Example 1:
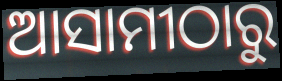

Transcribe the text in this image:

ଆସାମୀଠାରୁ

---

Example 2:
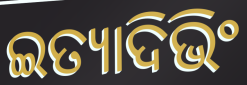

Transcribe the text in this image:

ଇତ୍ୟାଦିଭିଂ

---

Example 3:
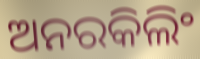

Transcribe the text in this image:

ଅନରକିଲିଂ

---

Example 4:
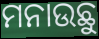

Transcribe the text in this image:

ମନାଉଛୁ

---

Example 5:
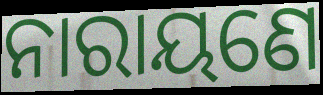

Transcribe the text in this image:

ନାରାୟଣେ